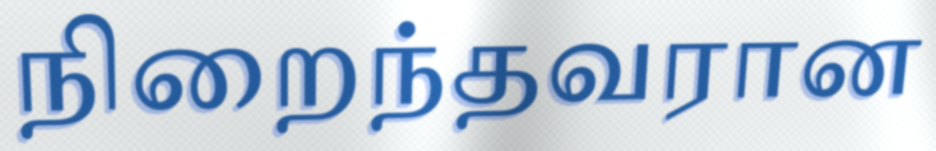
நிறைந்தவரான